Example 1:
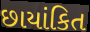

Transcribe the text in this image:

છાયાંકિત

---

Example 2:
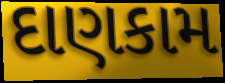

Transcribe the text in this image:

દાણકામ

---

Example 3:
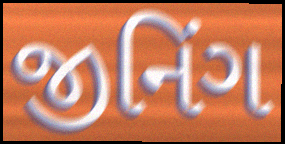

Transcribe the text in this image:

જીનિંગ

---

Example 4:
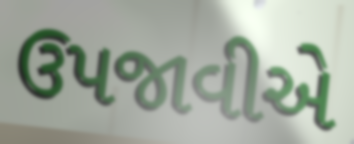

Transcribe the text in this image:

ઉપજાવીએ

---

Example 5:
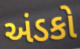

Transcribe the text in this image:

અંડકો